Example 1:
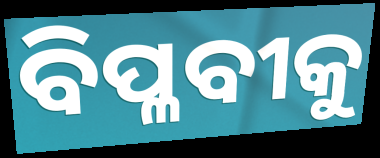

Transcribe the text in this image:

ବିପ୍ଳବୀକୁ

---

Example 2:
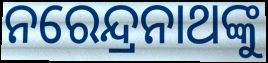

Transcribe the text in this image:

ନରେନ୍ଦ୍ରନାଥଙ୍କୁ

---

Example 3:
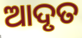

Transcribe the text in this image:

ଆଦୃତ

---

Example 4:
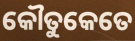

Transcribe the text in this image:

କୌତୁକେତେ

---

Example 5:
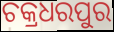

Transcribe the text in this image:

ଚକ୍ରଧରପୁର